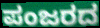
ಪಂಜರದ